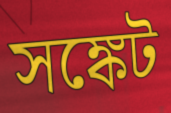
সঙ্কেট